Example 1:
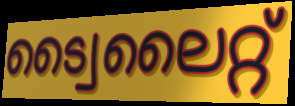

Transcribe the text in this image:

ട്വൈലൈറ്റ്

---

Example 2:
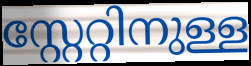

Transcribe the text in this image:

സ്റ്റേറ്റിനുള്ള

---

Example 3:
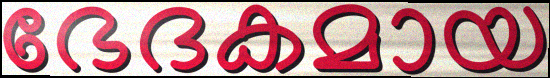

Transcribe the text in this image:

ഭേദകമായ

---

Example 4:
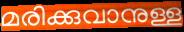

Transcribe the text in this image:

മരിക്കുവാനുള്ള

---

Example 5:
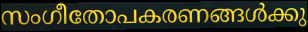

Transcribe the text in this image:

സംഗീതോപകരണങ്ങൾക്കു